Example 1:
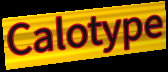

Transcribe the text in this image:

Calotype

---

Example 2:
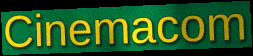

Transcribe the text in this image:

Cinemacom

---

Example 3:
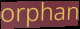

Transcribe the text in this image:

orphan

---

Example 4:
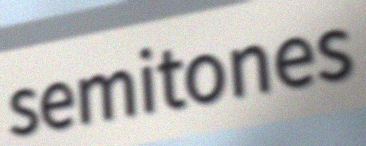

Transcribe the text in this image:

semitones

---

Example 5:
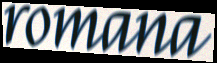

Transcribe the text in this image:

romana